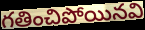
గతించిపోయినవి